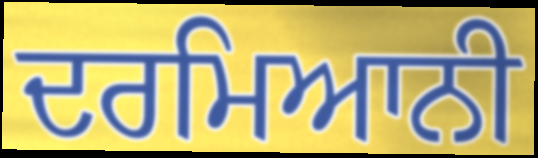
ਦਰਮਿਆਨੀ